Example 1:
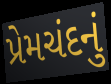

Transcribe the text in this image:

પ્રેમચંદનું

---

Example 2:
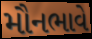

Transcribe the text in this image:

મૌનભાવે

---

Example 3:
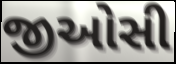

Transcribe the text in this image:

જીઓસી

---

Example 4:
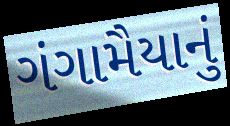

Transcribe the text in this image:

ગંગામૈયાનું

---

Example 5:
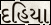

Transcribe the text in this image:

દહિયા